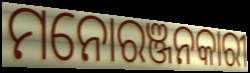
ମନୋରଞ୍ଜନକାରୀ